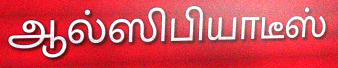
ஆல்ஸிபியாடீஸ்